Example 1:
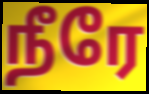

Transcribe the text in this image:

நீரே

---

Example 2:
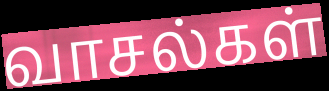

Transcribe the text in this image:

வாசல்கள்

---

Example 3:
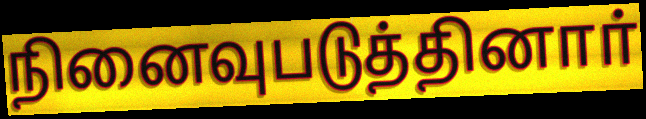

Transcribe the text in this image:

நினைவுபடுத்தினார்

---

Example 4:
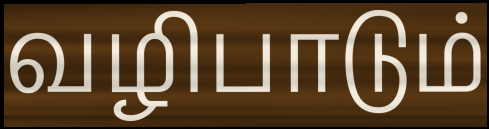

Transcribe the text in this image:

வழிபாடும்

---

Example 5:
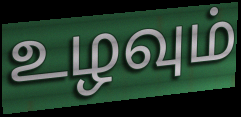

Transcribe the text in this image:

உழவும்